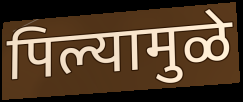
पिल्यामुळे